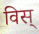
विस्